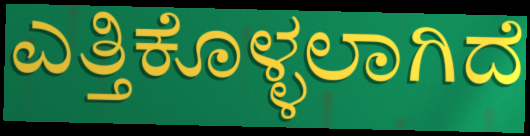
ಎತ್ತಿಕೊಳ್ಳಲಾಗಿದೆ